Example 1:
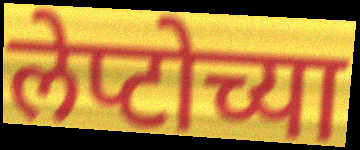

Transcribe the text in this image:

लेप्टोच्या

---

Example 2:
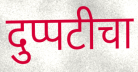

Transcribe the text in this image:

दुप्पटीचा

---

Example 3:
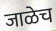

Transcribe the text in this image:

जाळेच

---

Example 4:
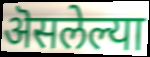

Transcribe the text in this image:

ऄसलेल्या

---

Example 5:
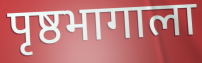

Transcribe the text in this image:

पृष्ठभागाला